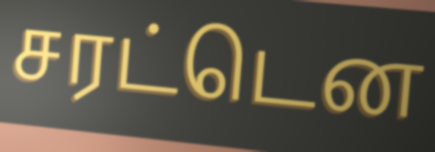
சரட்டென